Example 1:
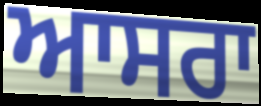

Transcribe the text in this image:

ਆਸਰਾ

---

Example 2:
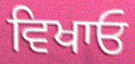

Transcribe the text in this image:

ਵਿਖਾਓ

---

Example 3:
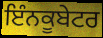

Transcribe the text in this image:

ਇੰਨਕੂਬੇਟਰ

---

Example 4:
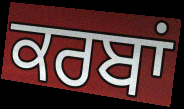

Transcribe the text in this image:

ਕਰਬਾਂ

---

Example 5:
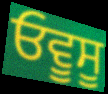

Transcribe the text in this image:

ਓਵੂਸੂ